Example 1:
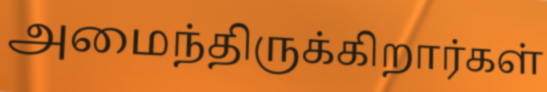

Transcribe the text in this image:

அமைந்திருக்கிறார்கள்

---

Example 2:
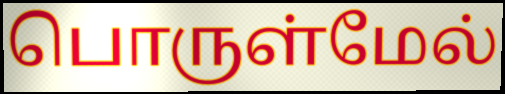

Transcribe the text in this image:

பொருள்மேல்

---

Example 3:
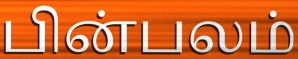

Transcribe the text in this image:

பின்பலம்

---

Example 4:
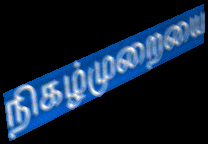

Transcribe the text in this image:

நிகழ்முறையை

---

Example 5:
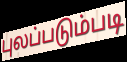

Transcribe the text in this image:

புலப்படும்படி